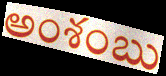
అంశంబు